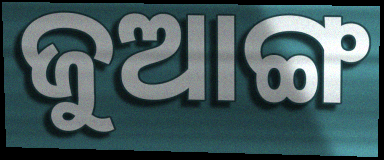
ଜୁଆଙ୍ଗ